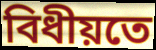
বিধীয়তে